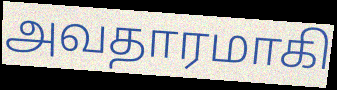
அவதாரமாகி